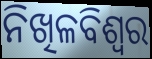
ନିଖିଳବିଶ୍ୱର